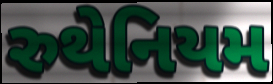
રુથેનિયમ